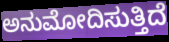
ಅನುಮೋದಿಸುತ್ತಿದೆ